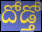
దోడ్తో